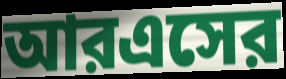
আরএসের